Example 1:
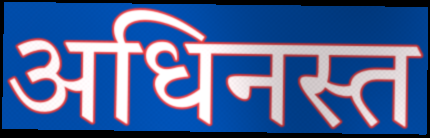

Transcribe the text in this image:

अधिनस्त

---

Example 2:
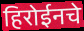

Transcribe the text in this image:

हिरोईनचे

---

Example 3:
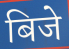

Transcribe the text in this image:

बिजे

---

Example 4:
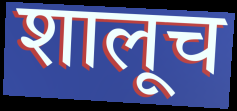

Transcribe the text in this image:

शालूच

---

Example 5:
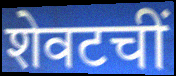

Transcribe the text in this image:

शेवटचीं